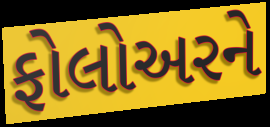
ફોલોઅરને